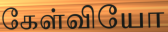
கேள்வியோ